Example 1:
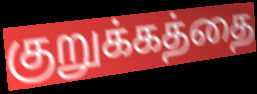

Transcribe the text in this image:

குறுக்கத்தை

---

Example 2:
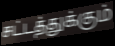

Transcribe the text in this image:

சட்டத்துக்கும்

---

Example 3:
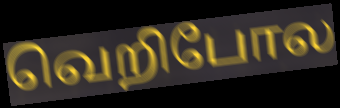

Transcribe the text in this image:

வெறிபோல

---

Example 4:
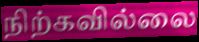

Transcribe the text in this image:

நிற்கவில்லை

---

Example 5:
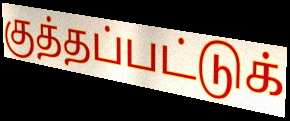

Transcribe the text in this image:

குத்தப்பட்டுக்